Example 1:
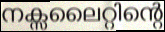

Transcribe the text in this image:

നക്സലൈറ്റിന്റെ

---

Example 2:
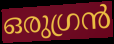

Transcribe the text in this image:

ഒരുഗ്രൻ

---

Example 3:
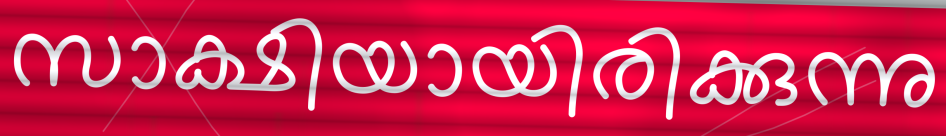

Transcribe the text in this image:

സാക്ഷിയായിരിക്കുന്നു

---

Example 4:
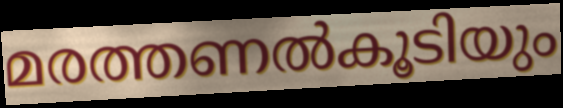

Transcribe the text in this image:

മരത്തണൽകൂടിയും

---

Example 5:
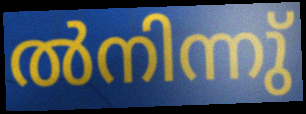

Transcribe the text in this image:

ൽനിന്നു്